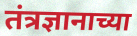
तंत्रज्ञानाच्या